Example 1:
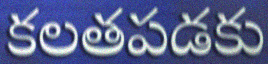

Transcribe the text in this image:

కలతపడకు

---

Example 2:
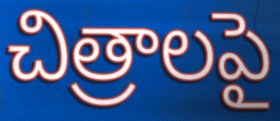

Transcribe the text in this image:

చిత్రాలపై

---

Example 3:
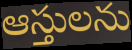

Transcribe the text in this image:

ఆస్తులను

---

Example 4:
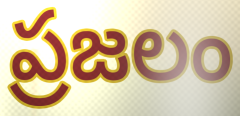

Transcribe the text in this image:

ప్రజలం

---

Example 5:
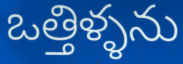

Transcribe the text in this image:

ఒత్తిళ్ళను